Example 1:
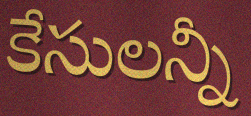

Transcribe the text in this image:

కేసులన్నీ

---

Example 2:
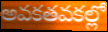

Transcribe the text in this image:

అవకతవకల్లో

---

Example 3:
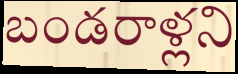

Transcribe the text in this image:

బండరాళ్లని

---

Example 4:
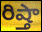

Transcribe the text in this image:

రిష్తా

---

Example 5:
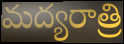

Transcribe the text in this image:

మద్యరాత్రి